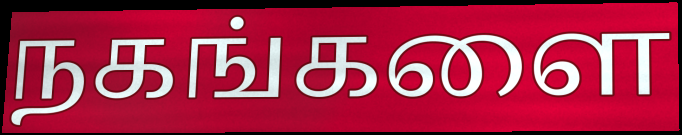
நகங்களை